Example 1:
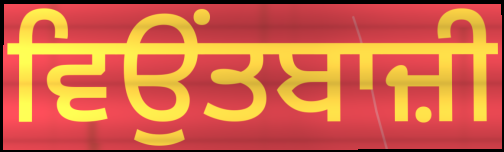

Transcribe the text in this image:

ਵਿਉਂਤਬਾਜ਼ੀ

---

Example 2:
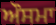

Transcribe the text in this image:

ਔਸਮਾ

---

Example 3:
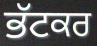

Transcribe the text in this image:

ਭੱਟਕਰ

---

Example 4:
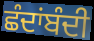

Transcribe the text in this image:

ਛੰਦਾਂਬੰਦੀ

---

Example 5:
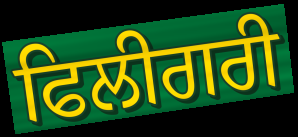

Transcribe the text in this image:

ਫਿਲੀਗਰੀ